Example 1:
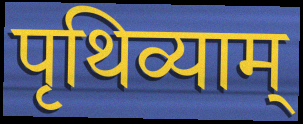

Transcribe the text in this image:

पृथिव्याम्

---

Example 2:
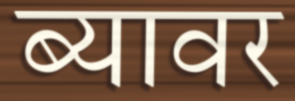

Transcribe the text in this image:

ब्यावर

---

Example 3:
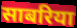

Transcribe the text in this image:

साबरिया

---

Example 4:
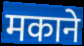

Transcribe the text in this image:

मकाने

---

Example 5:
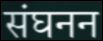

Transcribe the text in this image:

संघनन